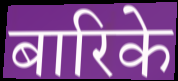
बारिके